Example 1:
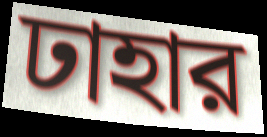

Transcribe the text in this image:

ঢাহার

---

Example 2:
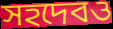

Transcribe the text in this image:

সহদেবও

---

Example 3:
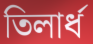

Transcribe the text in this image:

তিলার্ধ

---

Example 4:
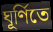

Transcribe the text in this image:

ঘূর্ণিতে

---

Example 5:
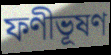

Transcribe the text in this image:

ফণীভূষণ